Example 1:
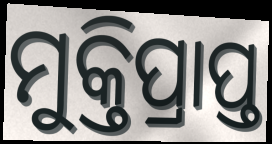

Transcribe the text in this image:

ମୁକ୍ତିପ୍ରାପ୍ତ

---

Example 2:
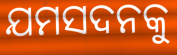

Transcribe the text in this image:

ଯମସଦନକୁ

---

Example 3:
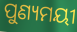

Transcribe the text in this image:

ପୁଣ୍ୟମୟୀ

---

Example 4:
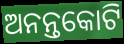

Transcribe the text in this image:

ଅନନ୍ତକୋଟି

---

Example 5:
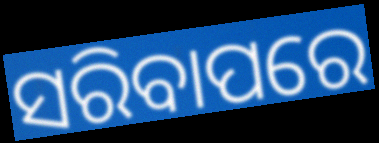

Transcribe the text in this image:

ସରିବାପରେ